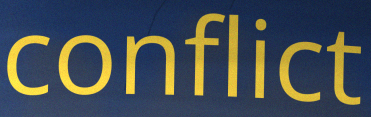
conflict